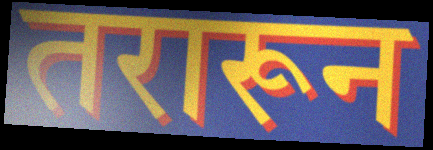
तरारून